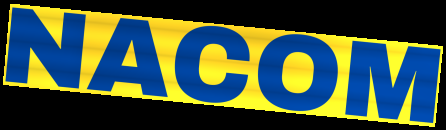
NACOM